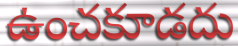
ఉంచకూడదు